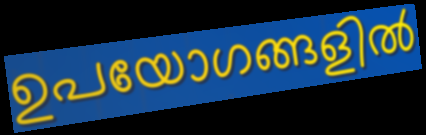
ഉപയോഗങ്ങളിൽ